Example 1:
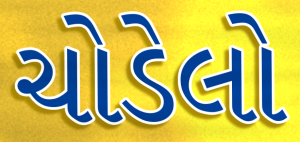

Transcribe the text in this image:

ચોડેલો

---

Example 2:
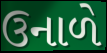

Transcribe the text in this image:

ઉનાળે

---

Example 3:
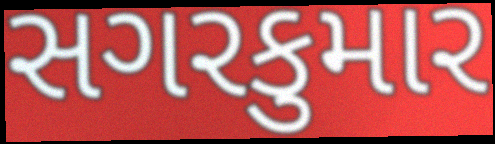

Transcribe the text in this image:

સગરકુમાર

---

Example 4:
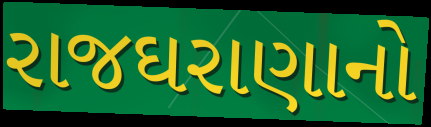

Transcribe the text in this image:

રાજઘરાણાનો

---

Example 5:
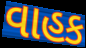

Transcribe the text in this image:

વાહક